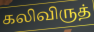
கலிவிருத்